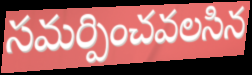
సమర్పించవలసిన